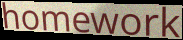
homework